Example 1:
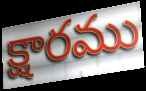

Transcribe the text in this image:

క్షారము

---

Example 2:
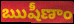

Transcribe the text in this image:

ఋషీణాం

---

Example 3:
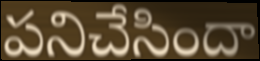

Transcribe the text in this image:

పనిచేసిందా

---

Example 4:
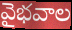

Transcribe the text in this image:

వైభవాల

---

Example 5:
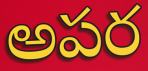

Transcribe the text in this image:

అపర